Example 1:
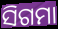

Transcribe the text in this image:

ସିଗମା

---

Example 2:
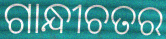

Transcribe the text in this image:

ଗାନ୍ଧୀଚତର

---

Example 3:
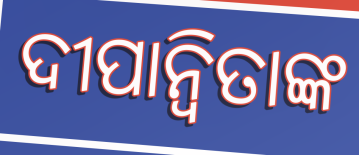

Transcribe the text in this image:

ଦୀପାନ୍ୱିତାଙ୍କ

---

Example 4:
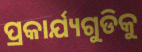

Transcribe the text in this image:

ପ୍ରକାର୍ଯ୍ୟଗୁଡିକୁ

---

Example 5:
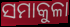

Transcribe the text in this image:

ସମାକୁଳା